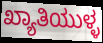
ಖ್ಯಾತಿಯುಳ್ಳ